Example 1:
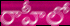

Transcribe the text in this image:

రాహీలో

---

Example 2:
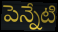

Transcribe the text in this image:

పెన్నేటి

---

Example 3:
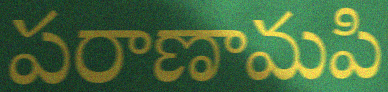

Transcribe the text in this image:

పరాణామపి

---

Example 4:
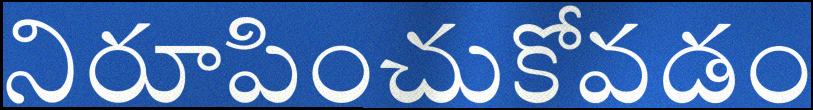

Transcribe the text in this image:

నిరూపించుకోవడం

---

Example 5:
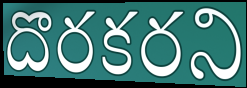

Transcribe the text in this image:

దొరకరని